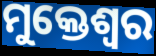
ମୁକ୍ତେଶ୍ଵର